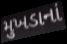
મુખડાનાં